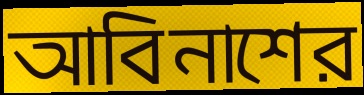
আবিনাশের